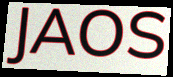
JAOS